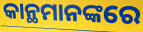
କାନ୍ଥମାନଙ୍କରେ